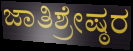
ಜಾತಿಶ್ರೇಷ್ಠರ